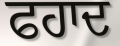
ਫਹਾਦ